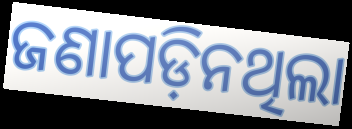
ଜଣାପଡ଼ିନଥିଲା